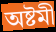
অষ্টমী